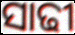
ସାଢୀ